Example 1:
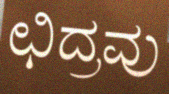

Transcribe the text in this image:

ಛಿದ್ರವು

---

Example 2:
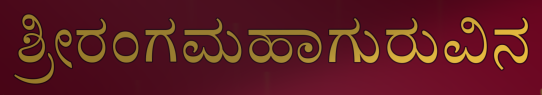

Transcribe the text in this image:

ಶ್ರೀರಂಗಮಹಾಗುರುವಿನ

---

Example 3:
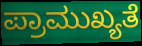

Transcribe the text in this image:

ಪ್ರಾಮುಖ್ಯತೆ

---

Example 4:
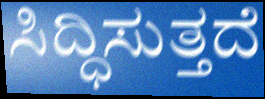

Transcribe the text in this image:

ಸಿದ್ಧಿಸುತ್ತದೆ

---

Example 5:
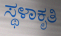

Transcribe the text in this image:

ಸ್ಥಳಾಕೃತಿ